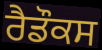
ਰੈਡੌਕਸ